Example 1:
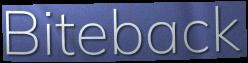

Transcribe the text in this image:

Biteback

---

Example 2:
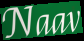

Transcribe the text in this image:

Naav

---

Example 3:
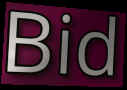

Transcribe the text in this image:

Bid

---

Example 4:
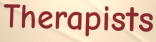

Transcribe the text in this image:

Therapists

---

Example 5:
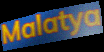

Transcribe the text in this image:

Malatya